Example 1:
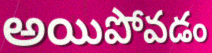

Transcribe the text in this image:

అయిపోవడం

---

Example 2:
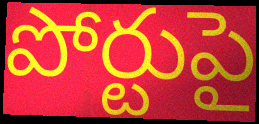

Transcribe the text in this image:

పోర్టుపై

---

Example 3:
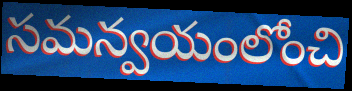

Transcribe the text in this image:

సమన్వయంలోంచి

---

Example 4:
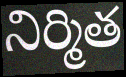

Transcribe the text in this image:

నిర్మిత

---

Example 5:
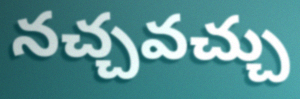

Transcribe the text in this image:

నచ్చవచ్చు